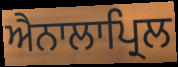
ਐਨਾਲਾਪ੍ਰਿਲ